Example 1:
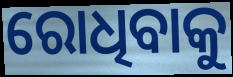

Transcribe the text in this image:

ରୋଧିବାକୁ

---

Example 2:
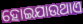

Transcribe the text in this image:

ହୋଇଯାଉଥାଏ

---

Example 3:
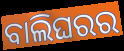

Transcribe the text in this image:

ବାଲିଘରର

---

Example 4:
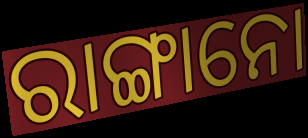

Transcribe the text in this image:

ରାଙ୍ଗାନୋ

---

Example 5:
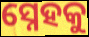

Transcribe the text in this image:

ସ୍ନେହକୁ